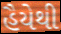
હૈયેથી